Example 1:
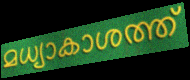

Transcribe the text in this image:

മധ്യാകാശത്ത്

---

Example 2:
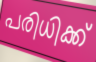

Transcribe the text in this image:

പരിധിക്ക്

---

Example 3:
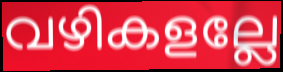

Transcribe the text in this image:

വഴികളല്ലേ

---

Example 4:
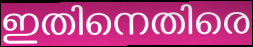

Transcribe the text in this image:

ഇതിനെതിരെ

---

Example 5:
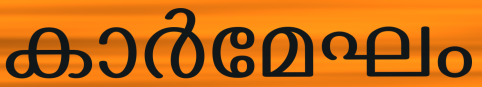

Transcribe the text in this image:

കാർമേഘം